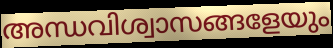
അന്ധവിശ്വാസങ്ങളേയും